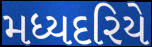
મધ્યદરિયે